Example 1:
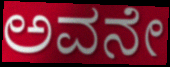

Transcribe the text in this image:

ಅವನೇ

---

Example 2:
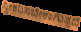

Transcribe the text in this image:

ಸ್ವೀಕರಿಸಬೇಕಾಗುತ್ತದೆ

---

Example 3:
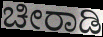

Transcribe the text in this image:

ಚೀರಾಡಿ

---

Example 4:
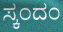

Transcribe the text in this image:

ಸ್ಕಂದಂ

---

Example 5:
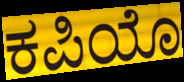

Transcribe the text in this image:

ಕಪಿಯೊ